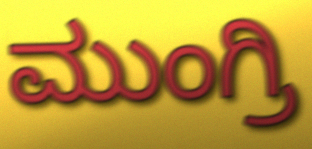
ಮುಂಗ್ರಿ